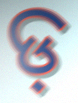
ଡ଼